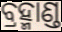
ବ୍ରହ୍ମାଣ୍ଡ